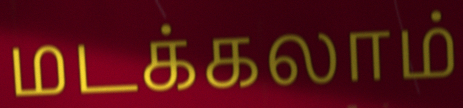
மடக்கலாம்